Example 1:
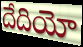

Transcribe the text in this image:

దేదియో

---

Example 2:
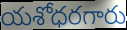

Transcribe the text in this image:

యశోధరగారు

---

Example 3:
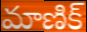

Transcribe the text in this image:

మాణిక్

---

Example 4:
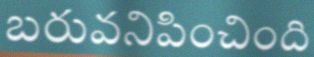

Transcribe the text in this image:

బరువనిపించింది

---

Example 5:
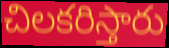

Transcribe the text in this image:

చిలకరిస్తారు